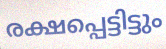
രക്ഷപ്പെട്ടിട്ടും